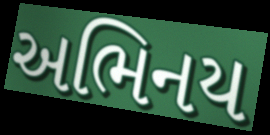
અભિનય